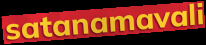
satanamavali